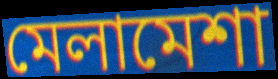
মেলামেশা